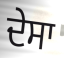
ਦੇਸਾ